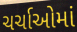
ચર્ચાઓમાં